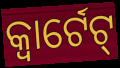
କ୍ୱାର୍ଟେଟ୍